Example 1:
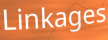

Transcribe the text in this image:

Linkages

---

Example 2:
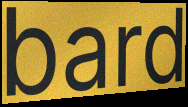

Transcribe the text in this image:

bard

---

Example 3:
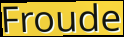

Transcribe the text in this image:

Froude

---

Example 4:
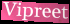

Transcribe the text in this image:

Vipreet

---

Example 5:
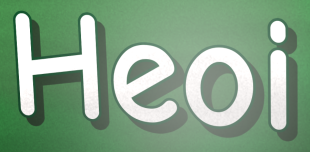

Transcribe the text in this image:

Heoi